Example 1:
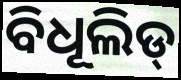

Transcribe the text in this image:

ବିଧୂଲିଡ୍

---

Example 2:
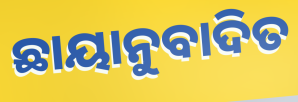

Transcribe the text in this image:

ଛାୟାନୁବାଦିତ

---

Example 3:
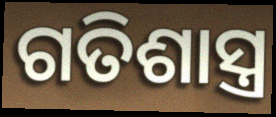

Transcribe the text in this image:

ଗତିଶାସ୍ତ୍ର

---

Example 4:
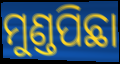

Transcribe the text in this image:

ମୁଣ୍ଡପିଛା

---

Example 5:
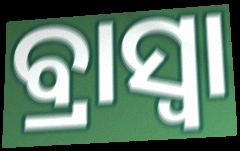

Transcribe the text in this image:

ବ୍ରାସ୍ବା